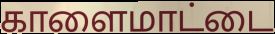
காளைமாட்டை